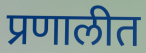
प्रणालीत